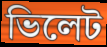
ভিলেট